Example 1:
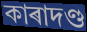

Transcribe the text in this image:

কাৰাদণ্ড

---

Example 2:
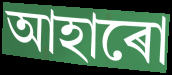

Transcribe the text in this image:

আহাৰো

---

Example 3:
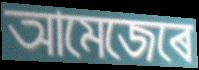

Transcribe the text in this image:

আমেজেৰে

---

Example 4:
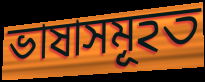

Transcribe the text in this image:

ভাষাসমূহত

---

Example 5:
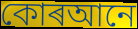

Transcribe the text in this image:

কোৰআনে